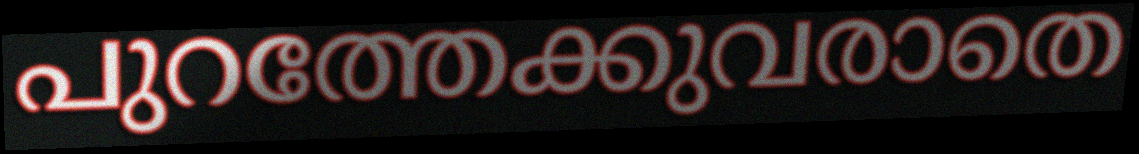
പുറത്തേക്കുവരാതെ